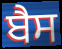
ਬੈਸ